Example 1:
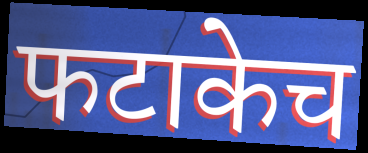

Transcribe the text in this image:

फटाकेच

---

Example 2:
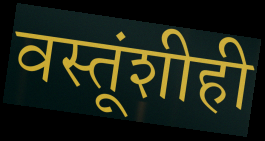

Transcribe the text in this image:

वस्तूंशीही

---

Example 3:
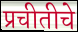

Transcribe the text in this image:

प्रचीतीचे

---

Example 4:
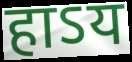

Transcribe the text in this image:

हाऽय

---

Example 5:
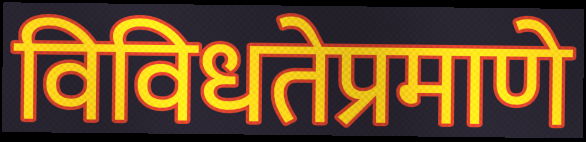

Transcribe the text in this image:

विविधतेप्रमाणे